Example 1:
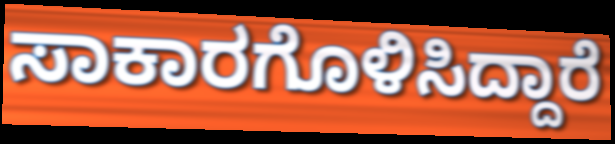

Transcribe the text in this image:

ಸಾಕಾರಗೊಳಿಸಿದ್ದಾರೆ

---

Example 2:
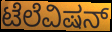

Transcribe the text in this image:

ಟೆಲೆವಿಷನ್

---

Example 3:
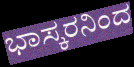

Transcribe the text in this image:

ಭಾಸ್ಕರನಿಂದ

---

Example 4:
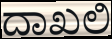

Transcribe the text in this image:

ದಾಖಲಿ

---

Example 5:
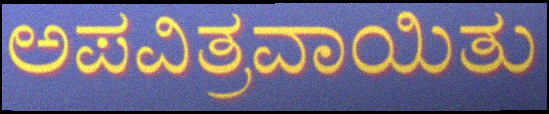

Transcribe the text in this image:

ಅಪವಿತ್ರವಾಯಿತು